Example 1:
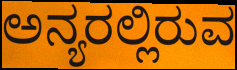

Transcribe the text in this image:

ಅನ್ಯರಲ್ಲಿರುವ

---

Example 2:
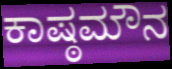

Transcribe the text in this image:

ಕಾಷ್ಠಮೌನ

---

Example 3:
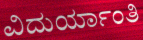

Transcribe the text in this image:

ವಿದುರ್ಯಾಂತಿ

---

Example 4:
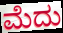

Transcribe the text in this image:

ಮೆದು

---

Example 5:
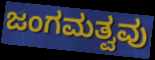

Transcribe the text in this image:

ಜಂಗಮತ್ವವು